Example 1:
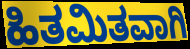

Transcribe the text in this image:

ಹಿತಮಿತವಾಗಿ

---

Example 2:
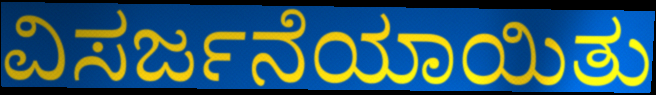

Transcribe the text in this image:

ವಿಸರ್ಜನೆಯಾಯಿತು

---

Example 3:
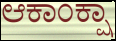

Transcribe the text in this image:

ಆಕಾಂಕ್ಷಾ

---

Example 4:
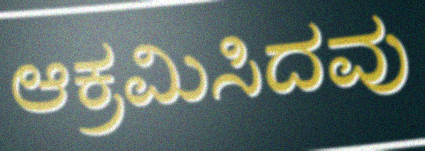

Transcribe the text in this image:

ಆಕ್ರಮಿಸಿದವು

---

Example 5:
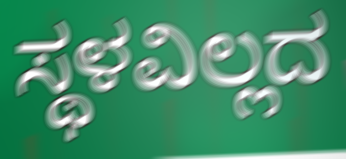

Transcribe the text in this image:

ಸ್ಥಳವಿಲ್ಲದ